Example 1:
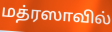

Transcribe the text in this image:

மத்ரஸாவில்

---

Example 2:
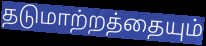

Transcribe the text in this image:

தடுமாற்றத்தையும்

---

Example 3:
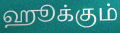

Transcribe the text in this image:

ஹூக்கும்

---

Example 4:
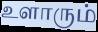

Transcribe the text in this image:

உளாரும்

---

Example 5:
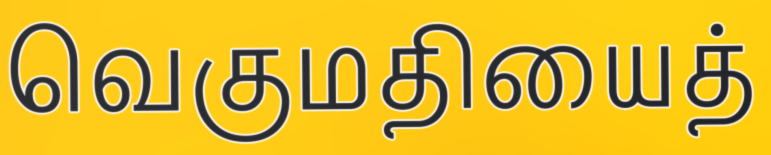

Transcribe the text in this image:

வெகுமதியைத்